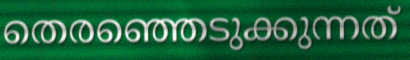
തെരഞ്ഞെടുക്കുന്നത്